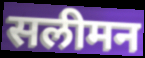
सलीमन